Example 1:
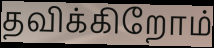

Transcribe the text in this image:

தவிக்கிறோம்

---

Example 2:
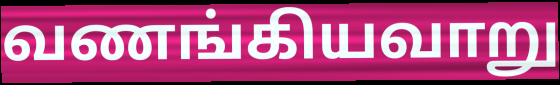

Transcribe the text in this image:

வணங்கியவாறு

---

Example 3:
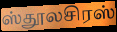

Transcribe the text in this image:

ஸ்தூலசிரஸ்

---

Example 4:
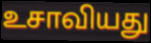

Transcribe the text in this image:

உசாவியது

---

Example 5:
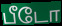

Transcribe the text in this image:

பீடோ